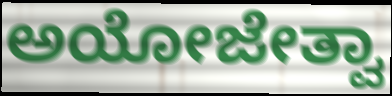
ಅಯೋಜೇತ್ವಾ